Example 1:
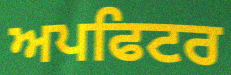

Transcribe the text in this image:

ਅਪਫਿਟਰ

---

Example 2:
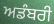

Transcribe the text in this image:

ਅਡੰਬਰੀ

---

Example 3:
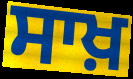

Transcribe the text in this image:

ਸਾਖ਼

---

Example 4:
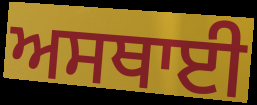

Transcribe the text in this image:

ਅਸਥਾਈ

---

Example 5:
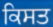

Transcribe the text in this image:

ਕਿਸਤ